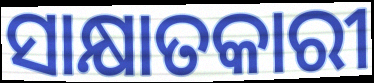
ସାକ୍ଷାତକାରୀ